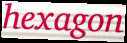
hexagon